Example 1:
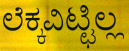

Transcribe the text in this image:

ಲೆಕ್ಕವಿಟ್ಟಿಲ್ಲ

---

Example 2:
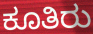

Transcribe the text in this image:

ಕೂತಿರು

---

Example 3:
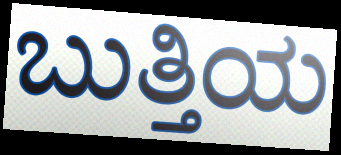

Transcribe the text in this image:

ಬುತ್ತಿಯ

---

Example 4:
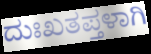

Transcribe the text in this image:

ದುಃಖತಪ್ತಳಾಗಿ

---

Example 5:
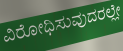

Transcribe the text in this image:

ವಿರೋಧಿಸುವುದರಲ್ಲೇ